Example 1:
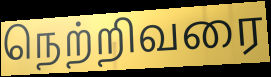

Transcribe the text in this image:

நெற்றிவரை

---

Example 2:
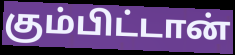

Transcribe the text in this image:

கும்பிட்டான்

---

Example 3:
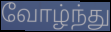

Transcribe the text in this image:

வோழ்ந்து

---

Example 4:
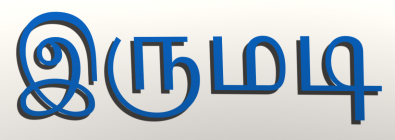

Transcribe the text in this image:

இருமடி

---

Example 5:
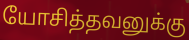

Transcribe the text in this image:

யோசித்தவனுக்கு